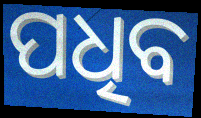
ପଧିବ